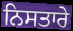
ਨਿਸਤਾਰੇ